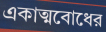
একাত্মবোধের